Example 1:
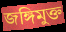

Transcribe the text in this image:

জঙ্গিমুক্ত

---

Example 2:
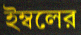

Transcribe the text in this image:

ইম্বলের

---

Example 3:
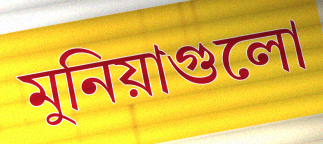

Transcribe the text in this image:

মুনিয়াগুলো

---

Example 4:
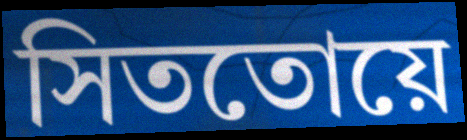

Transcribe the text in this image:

সিততোয়ে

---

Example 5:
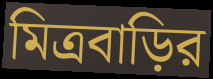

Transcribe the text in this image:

মিত্রবাড়ির